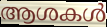
ആശകൾ